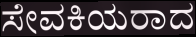
ಸೇವಕಿಯರಾದ